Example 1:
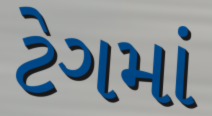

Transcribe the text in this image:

ટેગમાં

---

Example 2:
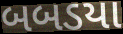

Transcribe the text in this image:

બબડયા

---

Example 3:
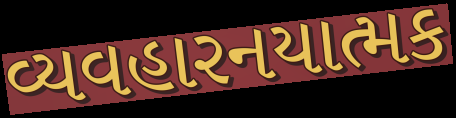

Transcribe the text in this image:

વ્યવહારનયાત્મક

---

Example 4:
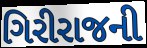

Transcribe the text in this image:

ગિરીરાજની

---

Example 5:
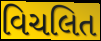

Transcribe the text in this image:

વિચલિત